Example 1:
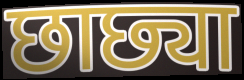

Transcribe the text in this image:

छाछ्या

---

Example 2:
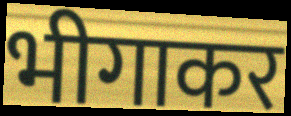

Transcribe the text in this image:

भीगाकर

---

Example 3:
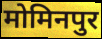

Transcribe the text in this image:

मोमिनपुर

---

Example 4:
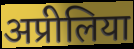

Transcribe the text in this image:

अप्रीलिया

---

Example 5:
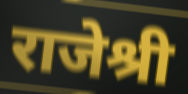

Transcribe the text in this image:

राजेश्री